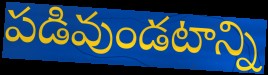
పడివుండటాన్ని